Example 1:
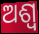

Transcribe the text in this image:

ଅଶ୍ବ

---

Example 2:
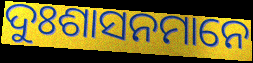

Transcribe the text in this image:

ଦୁଃଶାସନମାନେ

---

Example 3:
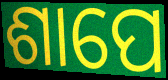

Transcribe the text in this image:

ଶାପେ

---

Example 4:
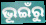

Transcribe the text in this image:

ଭୂଇଁରୁ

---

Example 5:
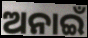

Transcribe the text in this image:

ଅନାଇଁ